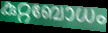
കുറ്റബോധം